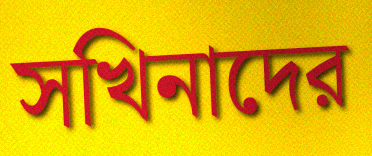
সখিনাদের